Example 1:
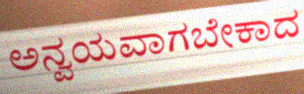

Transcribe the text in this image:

ಅನ್ವಯವಾಗಬೇಕಾದ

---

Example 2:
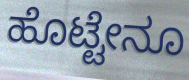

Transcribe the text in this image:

ಹೊಟ್ಟೇನೂ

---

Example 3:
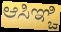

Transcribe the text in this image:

ಆಸಿಞ್ಚಿ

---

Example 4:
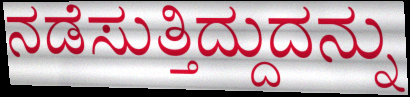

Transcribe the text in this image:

ನಡೆಸುತ್ತಿದ್ದುದನ್ನು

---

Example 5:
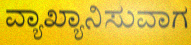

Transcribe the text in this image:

ವ್ಯಾಖ್ಯಾನಿಸುವಾಗ